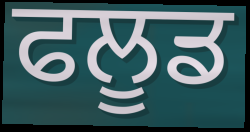
ਫਲੂਡ